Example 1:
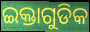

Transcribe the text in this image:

ଇକ୍ତାଗୁଡିକ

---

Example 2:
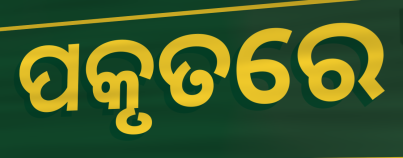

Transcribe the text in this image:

ପକୃତରେ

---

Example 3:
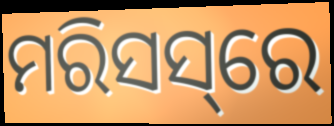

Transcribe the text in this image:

ମରିସସ୍‌ରେ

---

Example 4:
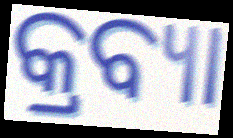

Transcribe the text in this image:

କ୍ରବ୍ୟା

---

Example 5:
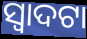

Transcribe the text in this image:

ସ୍ଵାଦଟା